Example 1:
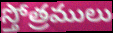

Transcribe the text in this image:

స్తోత్రములు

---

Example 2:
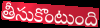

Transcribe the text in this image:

తీసుకొంటుంది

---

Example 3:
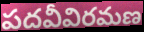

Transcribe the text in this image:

పదవీవిరమణ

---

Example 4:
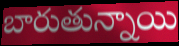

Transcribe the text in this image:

బారుతున్నాయి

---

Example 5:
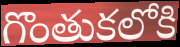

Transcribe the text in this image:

గొంతుకలోకి